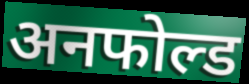
अनफोल्ड